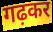
गढ़कर